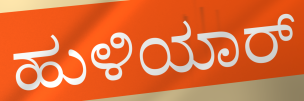
ಹುಳಿಯಾರ್